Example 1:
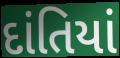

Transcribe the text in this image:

દાંતિયાં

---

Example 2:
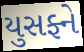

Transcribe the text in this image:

યુસફ્ને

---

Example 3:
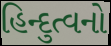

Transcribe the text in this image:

હિન્દુત્વનો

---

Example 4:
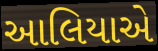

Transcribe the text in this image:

આલિયાએ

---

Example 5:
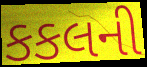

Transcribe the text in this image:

કકલની